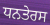
ਧਨਤੇਰਸ